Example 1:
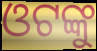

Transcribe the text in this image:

ଓଟଙ୍କୁ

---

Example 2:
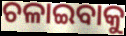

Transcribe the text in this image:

ଚଳାଇବାକୁ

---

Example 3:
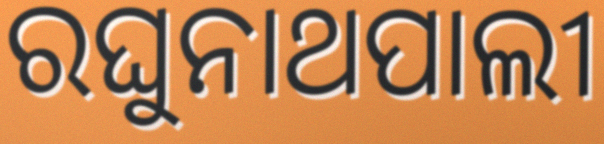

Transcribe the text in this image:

ରଘୁନାଥପାଲୀ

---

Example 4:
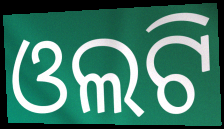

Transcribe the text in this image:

ଓଲଟି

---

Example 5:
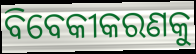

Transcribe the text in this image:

ବିବେକୀକରଣକୁ